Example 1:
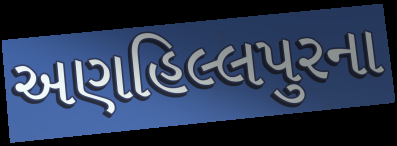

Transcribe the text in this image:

અણહિલ્લપુરના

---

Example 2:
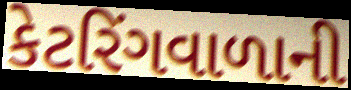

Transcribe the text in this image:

કેટરિંગવાળાની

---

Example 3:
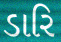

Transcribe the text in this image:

ડારિ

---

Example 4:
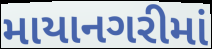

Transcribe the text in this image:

માયાનગરીમાં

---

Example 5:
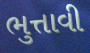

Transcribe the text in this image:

ભુત્તાવી